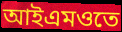
আইএমওতে